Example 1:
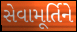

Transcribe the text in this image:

સેવામૂર્તિને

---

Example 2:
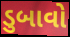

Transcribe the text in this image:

ડુબાવો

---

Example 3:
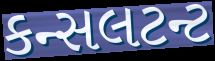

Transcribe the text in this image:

કન્સલટન્ટ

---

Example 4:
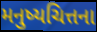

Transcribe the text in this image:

મનુષ્યચિત્તના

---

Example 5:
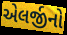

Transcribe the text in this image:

એલર્જીનો